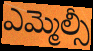
ఎమ్మెల్సీ